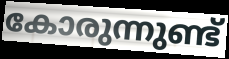
കോരുന്നുണ്ട്